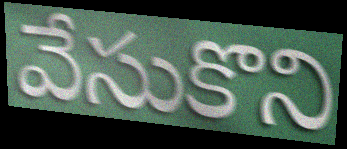
వేసుకొని